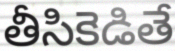
తీసికెడితే